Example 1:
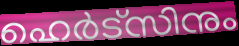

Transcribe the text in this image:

ഹെർട്സിനും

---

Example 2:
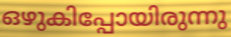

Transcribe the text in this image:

ഒഴുകിപ്പോയിരുന്നു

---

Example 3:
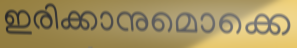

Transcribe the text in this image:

ഇരിക്കാനുമൊക്കെ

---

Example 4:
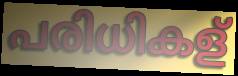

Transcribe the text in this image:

പരിധികള്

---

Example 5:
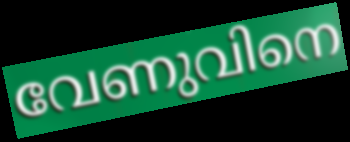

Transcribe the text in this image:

വേണുവിനെ